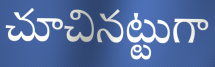
చూచినట్టుగా